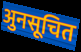
अुनसूचित